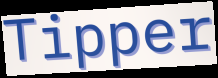
Tipper